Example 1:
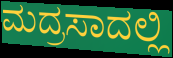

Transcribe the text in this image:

ಮದ್ರಸಾದಲ್ಲಿ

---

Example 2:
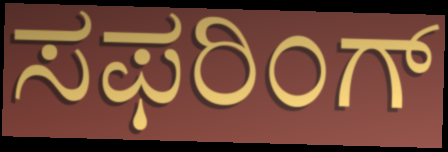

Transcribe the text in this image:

ಸಫರಿಂಗ್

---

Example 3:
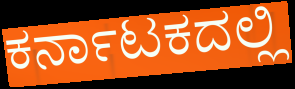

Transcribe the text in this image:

ಕರ್ನಾಟಕದಲ್ಲಿ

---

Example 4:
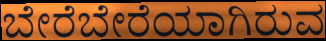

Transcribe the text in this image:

ಬೇರೆಬೇರೆಯಾಗಿರುವ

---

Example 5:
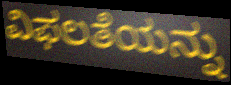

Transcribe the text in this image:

ವಿಫಲತೆಯನ್ನು